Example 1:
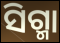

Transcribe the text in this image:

ସିଗ୍ମା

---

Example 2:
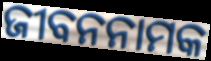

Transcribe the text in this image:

ଜୀବନନାମକ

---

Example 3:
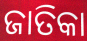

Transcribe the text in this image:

ଜାତିକା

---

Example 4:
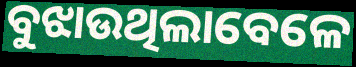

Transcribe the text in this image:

ବୁଝାଉଥିଲାବେଳେ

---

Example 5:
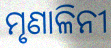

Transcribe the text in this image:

ମୃଣାଳିନୀ